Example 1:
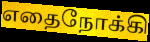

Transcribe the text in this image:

எதைநோக்கி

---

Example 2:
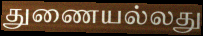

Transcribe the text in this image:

துணையல்லது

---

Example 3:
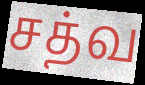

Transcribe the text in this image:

சத்வ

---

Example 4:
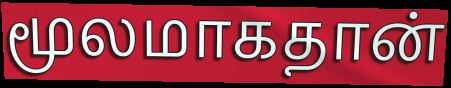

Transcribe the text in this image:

மூலமாகதான்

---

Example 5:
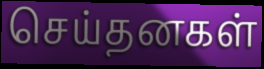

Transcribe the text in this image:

செய்தனகள்